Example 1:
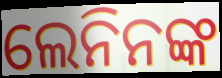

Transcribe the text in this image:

ଲେନିନଙ୍କ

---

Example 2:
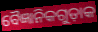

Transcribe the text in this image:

ବୈଜ୍ଞାନିକଗୁଡ଼ାକ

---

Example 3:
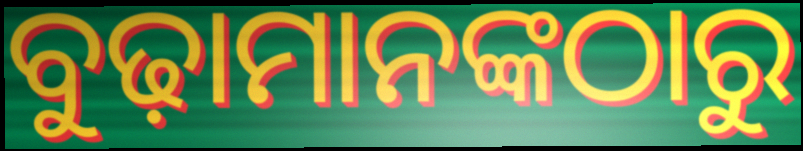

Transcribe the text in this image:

ବୁଢ଼ାମାନଙ୍କଠାରୁ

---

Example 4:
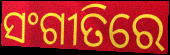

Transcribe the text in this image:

ସଂଗୀତିରେ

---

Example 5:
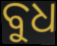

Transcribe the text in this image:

ବୁଧ